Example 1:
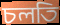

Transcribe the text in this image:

চলতি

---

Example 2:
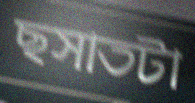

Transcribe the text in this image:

ছসাতটা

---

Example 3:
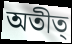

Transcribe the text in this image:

অতীত্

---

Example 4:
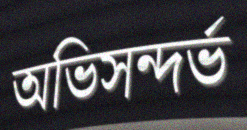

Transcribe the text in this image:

অভিসন্দর্ভ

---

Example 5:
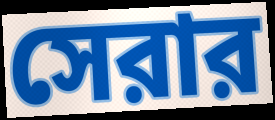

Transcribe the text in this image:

সেরার